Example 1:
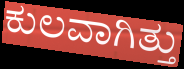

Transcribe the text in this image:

ಕುಲವಾಗಿತ್ತು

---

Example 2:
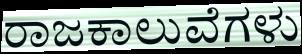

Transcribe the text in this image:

ರಾಜಕಾಲುವೆಗಳು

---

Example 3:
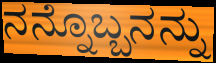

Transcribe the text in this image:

ನನ್ನೊಬ್ಬನನ್ನು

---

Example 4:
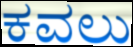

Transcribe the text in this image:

ಕವಲು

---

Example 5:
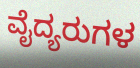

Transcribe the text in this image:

ವೈದ್ಯರುಗಳ